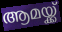
ആമയ്ക്ക്